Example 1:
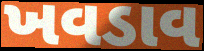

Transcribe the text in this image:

ખવડાવ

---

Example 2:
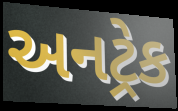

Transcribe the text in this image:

અનટ્રેક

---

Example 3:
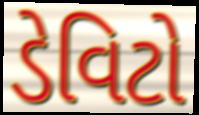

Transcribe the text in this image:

ડેવિટો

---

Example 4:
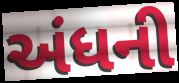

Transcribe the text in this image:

અંધની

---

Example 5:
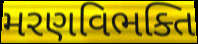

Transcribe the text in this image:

મરણવિભક્તિ